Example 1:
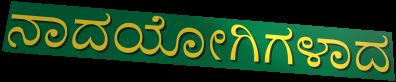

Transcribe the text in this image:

ನಾದಯೋಗಿಗಳಾದ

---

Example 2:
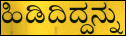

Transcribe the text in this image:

ಹಿಡಿದಿದ್ದನ್ನು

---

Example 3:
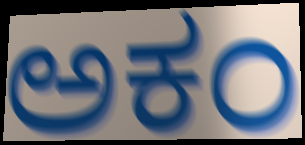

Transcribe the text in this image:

ಅಕಂ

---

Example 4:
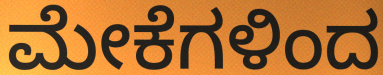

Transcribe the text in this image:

ಮೇಕೆಗಳಿಂದ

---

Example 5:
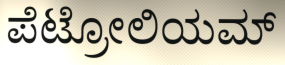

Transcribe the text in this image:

ಪೆಟ್ರೋಲಿಯಮ್